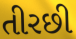
તીરછી